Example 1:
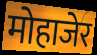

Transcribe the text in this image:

मोहाजेर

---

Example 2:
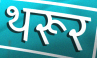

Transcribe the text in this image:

थरूर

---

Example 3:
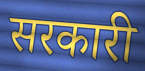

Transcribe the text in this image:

सरकारी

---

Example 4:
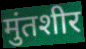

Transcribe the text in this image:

मुंतशीर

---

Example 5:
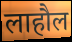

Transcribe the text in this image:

लाहौल